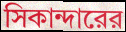
সিকান্দারের